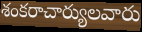
శంకరాచార్యులవారు